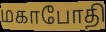
மகாபோதி